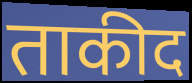
ताकीद